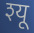
श्यू